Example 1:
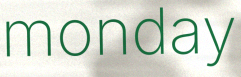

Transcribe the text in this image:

monday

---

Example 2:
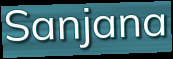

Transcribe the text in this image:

Sanjana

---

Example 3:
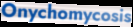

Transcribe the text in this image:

Onychomycosis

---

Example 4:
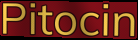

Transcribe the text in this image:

Pitocin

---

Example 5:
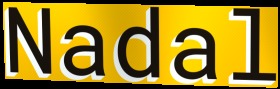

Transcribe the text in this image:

Nadal